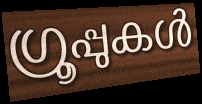
ഗ്രൂപ്പുകൾ